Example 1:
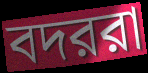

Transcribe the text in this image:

বদররা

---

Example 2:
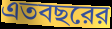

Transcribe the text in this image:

এতবছরের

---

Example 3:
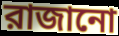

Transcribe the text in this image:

রাজানো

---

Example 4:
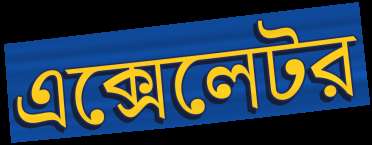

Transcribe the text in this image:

এক্সেলেটর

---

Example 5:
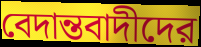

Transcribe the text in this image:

বেদান্তবাদীদের